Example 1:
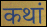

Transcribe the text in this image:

कथां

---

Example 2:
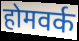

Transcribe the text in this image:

होमवर्क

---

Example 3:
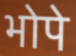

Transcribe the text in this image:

भोपे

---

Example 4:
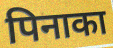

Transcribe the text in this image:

पिनाका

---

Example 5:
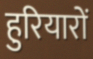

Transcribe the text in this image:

हुरियारों